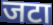
जटा